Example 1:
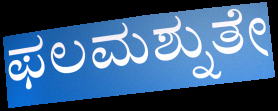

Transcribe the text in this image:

ಫಲಮಶ್ನುತೇ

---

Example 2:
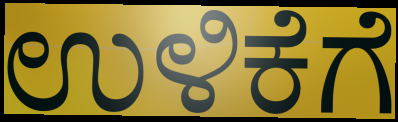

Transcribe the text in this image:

ಉಳಿಕೆಗೆ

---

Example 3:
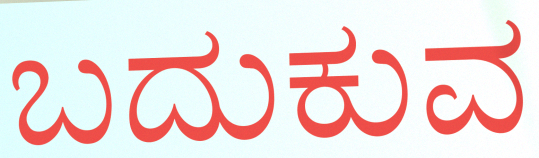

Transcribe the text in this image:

ಬದುಕುವ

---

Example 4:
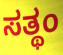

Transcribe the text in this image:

ಸತ್ಥಂ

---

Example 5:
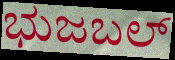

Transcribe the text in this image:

ಭುಜಬಲ್